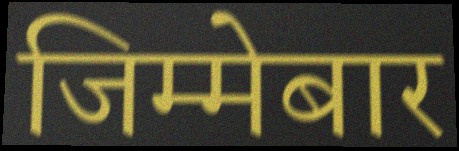
जिम्मेबार